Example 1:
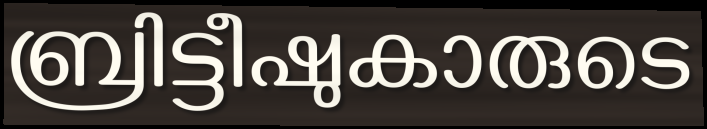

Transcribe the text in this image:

ബ്രിട്ടീഷുകാരുടെ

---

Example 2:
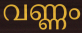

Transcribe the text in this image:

വണ്ണം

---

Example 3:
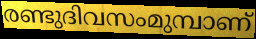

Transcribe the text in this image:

രണ്ടുദിവസംമുമ്പാണ്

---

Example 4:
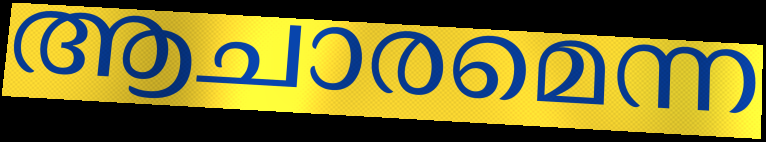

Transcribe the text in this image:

ആചാരമെന്ന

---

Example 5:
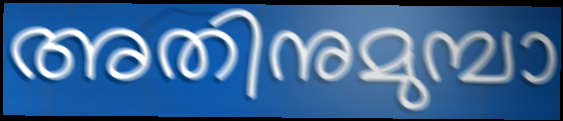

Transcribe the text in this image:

അതിനുമുമ്പാ